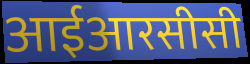
आईआरसीसी